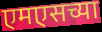
एमएसच्या